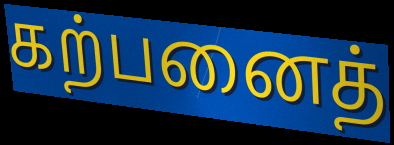
கற்பனைத்